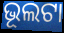
ଭୂଲଟା